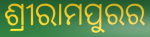
ଶ୍ରୀରାମପୁରର